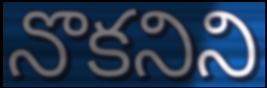
నొకనిని